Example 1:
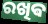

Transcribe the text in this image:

ରଖିଵ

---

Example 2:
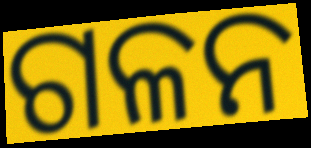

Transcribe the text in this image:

ଗଳନ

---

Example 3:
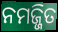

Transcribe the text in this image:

ନମଜ୍ଜିତ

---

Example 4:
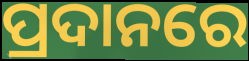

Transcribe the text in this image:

ପ୍ରଦାନରେ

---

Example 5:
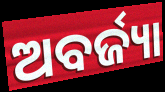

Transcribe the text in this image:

ଅବର୍ଜ୍ୟା